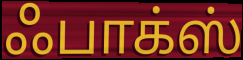
ஃபாக்ஸ்